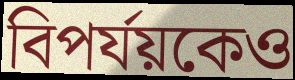
বিপর্যয়কেও